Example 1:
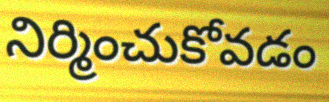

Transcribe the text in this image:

నిర్మించుకోవడం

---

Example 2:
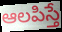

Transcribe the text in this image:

ఆలపిస్తే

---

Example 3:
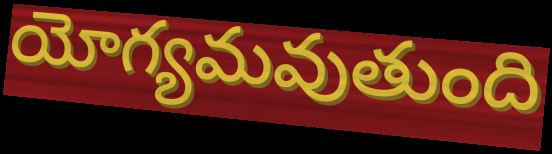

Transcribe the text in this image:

యోగ్యమవుతుంది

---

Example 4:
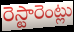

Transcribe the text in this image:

రెస్టారెంట్లు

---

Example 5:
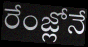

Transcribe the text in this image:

రేంజ్లోనే